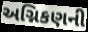
અગ્નિકણની